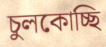
চুলকোচ্ছি